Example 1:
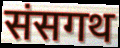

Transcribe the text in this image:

संसगथ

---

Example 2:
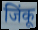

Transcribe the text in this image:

जिंकू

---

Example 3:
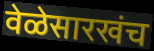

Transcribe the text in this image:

वेळेसारखंच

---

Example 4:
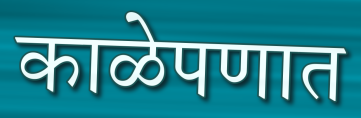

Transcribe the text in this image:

काळेपणात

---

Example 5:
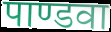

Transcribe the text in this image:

पाण्डवा